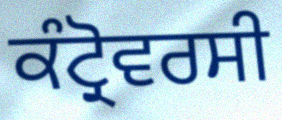
ਕੰਟ੍ਰੋਵਰਸੀ